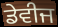
ਡੇਵੀਜ